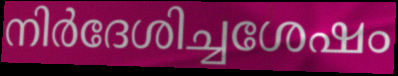
നിർദേശിച്ചശേഷം